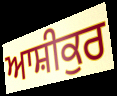
ਆਸ਼ੀਕੁਰ